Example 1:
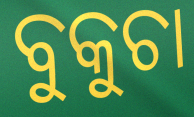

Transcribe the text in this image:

ବୁକୁଚା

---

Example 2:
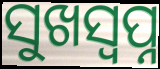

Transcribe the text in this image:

ସୁଖସ୍ୱପ୍ନ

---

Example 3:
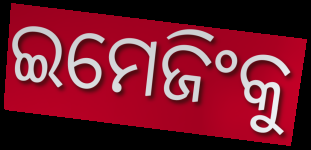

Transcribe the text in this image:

ଇମେଜିଂକୁ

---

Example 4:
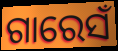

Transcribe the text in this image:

ଗାରେସଁ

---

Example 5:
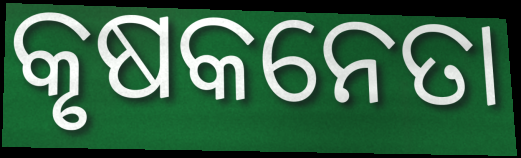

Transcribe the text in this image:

କୃଷକନେତା